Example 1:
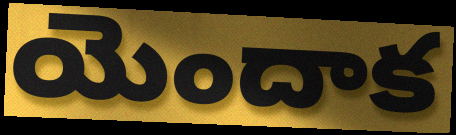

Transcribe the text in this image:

యెందాక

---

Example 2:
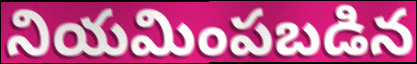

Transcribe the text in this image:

నియమింపబడిన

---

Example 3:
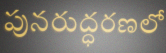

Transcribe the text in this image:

పునరుద్ధరణలో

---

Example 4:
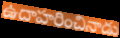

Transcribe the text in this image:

ఉదాహరించినాడు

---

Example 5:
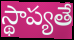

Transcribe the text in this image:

స్థాప్యతే